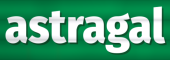
astragal